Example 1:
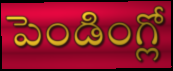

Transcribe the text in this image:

పెండింగ్లో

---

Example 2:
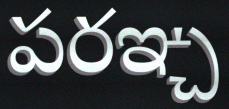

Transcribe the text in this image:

పరఞ్చ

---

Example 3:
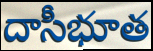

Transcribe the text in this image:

దాసీభూత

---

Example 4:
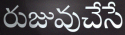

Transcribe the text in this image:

రుజువుచేసే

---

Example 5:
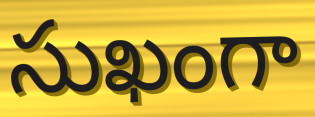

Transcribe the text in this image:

సుఖంగా